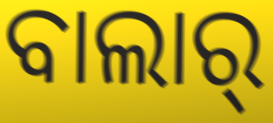
ବାଲାର୍